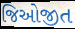
જિઓજીત